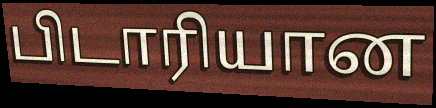
பிடாரியான